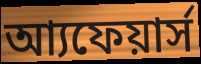
আ্যফেয়ার্স